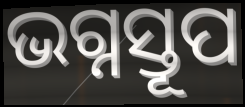
ଭଗ୍ନସ୍ତୂପ